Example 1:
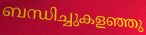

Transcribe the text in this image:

ബന്ധിച്ചുകളഞ്ഞു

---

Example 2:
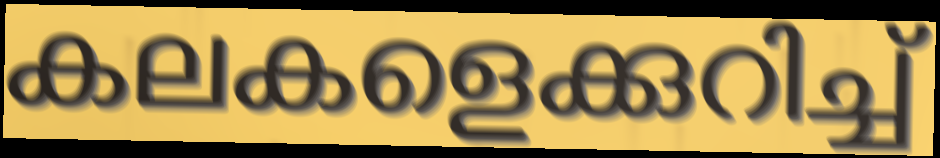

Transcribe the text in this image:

കലകളെക്കുറിച്ച്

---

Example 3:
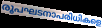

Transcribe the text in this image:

രൂപഘടനാപരിധികളെ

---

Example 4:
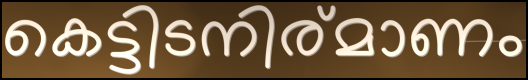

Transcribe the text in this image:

കെട്ടിടനിര്മാണം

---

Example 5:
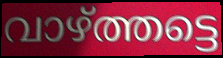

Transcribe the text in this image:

വാഴ്ത്തട്ടെ